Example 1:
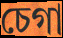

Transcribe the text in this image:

চেগা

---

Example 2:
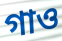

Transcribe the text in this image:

গাও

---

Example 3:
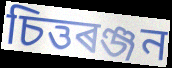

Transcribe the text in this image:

চিত্তৰঞ্জন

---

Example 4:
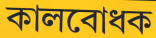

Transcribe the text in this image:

কালবোধক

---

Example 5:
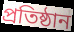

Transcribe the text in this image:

প্ৰতিষ্ঠান